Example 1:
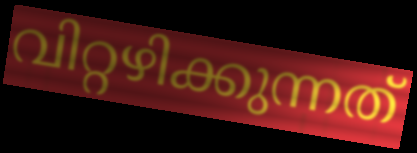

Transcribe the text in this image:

വിറ്റഴിക്കുന്നത്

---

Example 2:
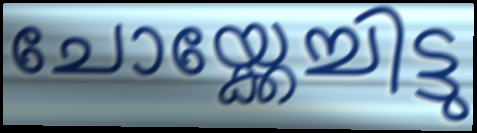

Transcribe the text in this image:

ചോയ്ക്കേച്ചിട്ടു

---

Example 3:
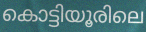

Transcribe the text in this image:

കൊട്ടിയൂരിലെ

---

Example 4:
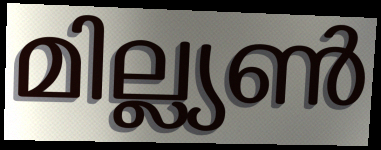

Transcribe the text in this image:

മില്ല്യൺ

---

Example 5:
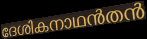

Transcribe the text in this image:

ദേശികനാഥൻതൻ